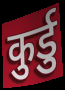
कुर्डु